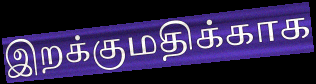
இறக்குமதிக்காக